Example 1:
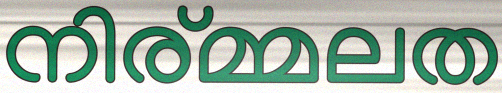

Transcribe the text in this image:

നിര്മ്മലത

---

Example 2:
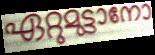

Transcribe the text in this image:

ഏറ്റുമുട്ടാനോ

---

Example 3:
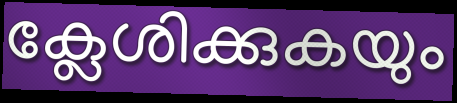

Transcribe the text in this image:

ക്ലേശിക്കുകയും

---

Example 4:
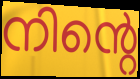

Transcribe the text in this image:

നിന്റെ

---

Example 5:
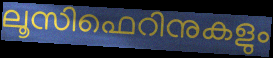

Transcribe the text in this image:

ലൂസിഫെറിനുകളും